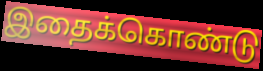
இதைக்கொண்டு